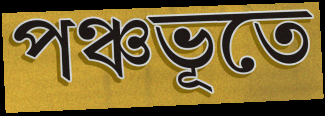
পঞ্চভূতে